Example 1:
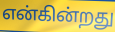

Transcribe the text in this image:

என்கின்றது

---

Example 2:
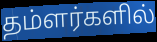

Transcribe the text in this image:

தம்ளர்களில்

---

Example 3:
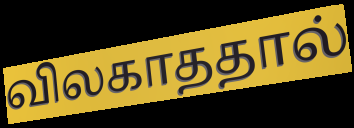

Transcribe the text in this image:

விலகாததால்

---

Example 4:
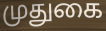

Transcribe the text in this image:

முதுகை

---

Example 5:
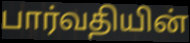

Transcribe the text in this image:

பார்வதியின்